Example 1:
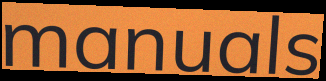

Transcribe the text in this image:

manuals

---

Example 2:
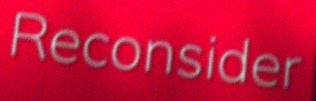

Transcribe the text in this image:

Reconsider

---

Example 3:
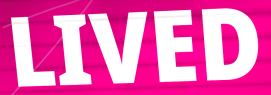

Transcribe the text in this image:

LIVED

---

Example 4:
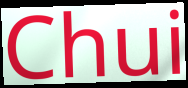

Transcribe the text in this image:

Chui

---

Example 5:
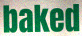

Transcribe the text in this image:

baked